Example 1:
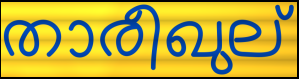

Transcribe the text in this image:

താരീഖുല്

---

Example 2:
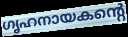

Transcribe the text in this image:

ഗൃഹനായകന്റെ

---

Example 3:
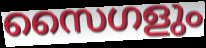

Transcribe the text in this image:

സൈഗളും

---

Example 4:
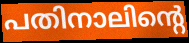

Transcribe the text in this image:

പതിനാലിന്റെ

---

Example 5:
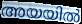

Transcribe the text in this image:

അയയിൽ